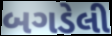
બગડેલી